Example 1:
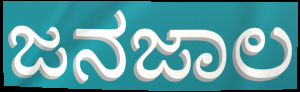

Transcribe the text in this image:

ಜನಜಾಲ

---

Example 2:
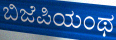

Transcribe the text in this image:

ಬಿಜೆಪಿಯಂಥ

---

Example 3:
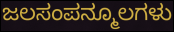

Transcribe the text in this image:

ಜಲಸಂಪನ್ಮೂಲಗಳು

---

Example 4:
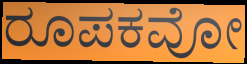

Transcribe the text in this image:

ರೂಪಕವೋ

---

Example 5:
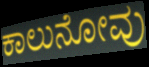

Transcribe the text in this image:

ಕಾಲುನೋವು